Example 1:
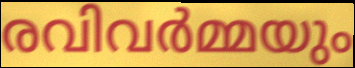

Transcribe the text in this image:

രവിവർമ്മയും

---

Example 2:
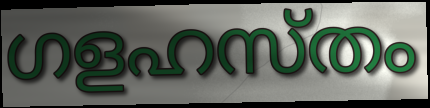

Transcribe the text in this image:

ഗളഹസ്തം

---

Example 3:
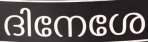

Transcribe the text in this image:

ദിനേശേ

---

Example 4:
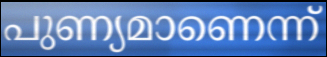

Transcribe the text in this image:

പുണ്യമാണെന്ന്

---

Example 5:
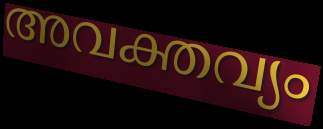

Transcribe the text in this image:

അവക്തവ്യം